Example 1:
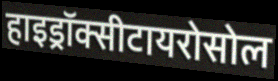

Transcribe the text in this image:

हाइड्रॉक्सीटायरोसोल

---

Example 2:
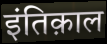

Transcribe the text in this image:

इंतिक़ाल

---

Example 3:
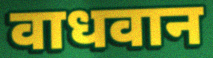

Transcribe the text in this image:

वाधवान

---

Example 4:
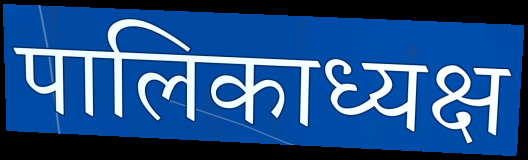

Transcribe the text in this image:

पालिकाध्यक्ष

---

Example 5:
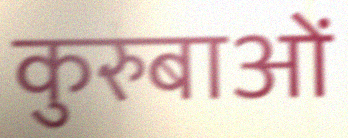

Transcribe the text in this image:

कुरुबाओं